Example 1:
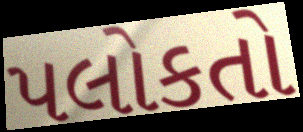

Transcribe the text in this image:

પલોકતો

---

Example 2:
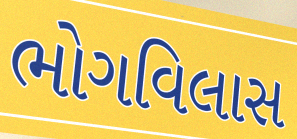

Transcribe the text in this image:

ભોગવિલાસ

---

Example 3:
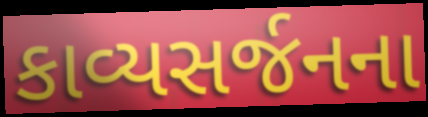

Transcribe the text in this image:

કાવ્યસર્જનના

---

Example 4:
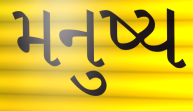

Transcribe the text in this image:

મનુષ્ય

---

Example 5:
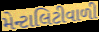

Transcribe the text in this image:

મેન્ટાલિટીવાળી